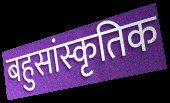
बहुसांस्कृतिक